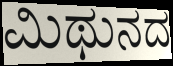
ಮಿಥುನದ